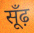
सूँढ़